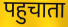
पहुचाता